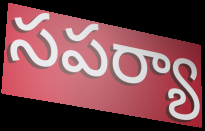
సపర్యా